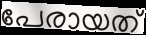
പേരായത്